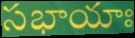
సభాయాః